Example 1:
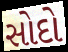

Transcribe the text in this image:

સોદો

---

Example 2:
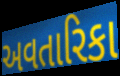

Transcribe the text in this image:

અવતારિકા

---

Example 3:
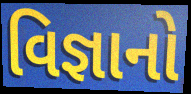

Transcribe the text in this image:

વિજ્ઞાનો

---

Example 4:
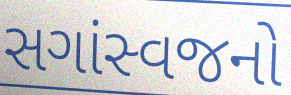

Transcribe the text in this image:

સગાંસ્વજનો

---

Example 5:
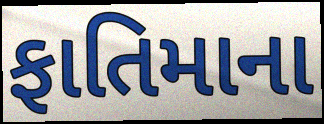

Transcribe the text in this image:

ફાતિમાના